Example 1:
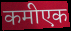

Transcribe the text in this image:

कमीएक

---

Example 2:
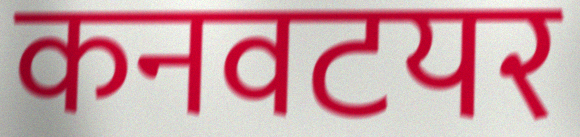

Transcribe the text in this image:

कनवटयर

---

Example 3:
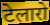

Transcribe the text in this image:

टेलारो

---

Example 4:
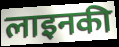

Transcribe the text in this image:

लाइनकी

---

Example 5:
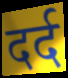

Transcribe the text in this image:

दर्द